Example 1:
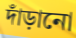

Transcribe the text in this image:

দাঁড়ানো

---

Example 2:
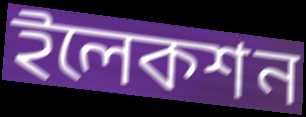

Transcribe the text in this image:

ইলেকশন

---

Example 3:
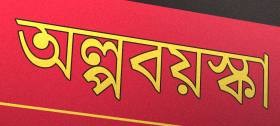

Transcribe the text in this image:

অল্পবয়স্কা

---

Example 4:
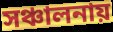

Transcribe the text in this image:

সঞ্চালনায়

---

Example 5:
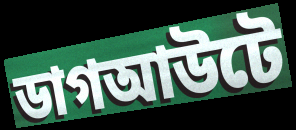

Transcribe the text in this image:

ডাগআউটে